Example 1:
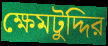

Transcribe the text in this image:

ক্ষেমটুদ্দির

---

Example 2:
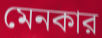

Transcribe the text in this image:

মেনকার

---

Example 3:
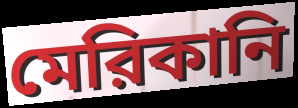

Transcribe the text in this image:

মেরিকানি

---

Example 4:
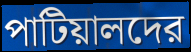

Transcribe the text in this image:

পাটিয়ালদের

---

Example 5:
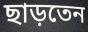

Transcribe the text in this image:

ছাড়তেন